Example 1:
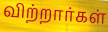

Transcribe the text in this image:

விற்றார்கள்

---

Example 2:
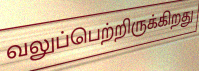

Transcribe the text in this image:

வலுப்பெற்றிருக்கிறது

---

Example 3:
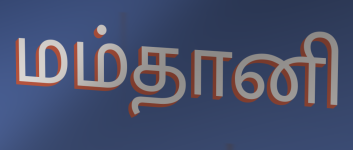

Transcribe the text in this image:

மம்தானி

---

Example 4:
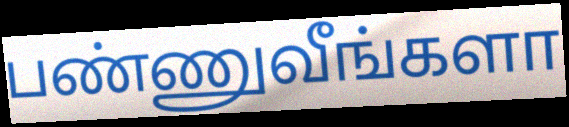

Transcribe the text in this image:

பண்ணுவீங்களா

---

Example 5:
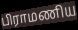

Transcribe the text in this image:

பிராமணிய